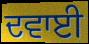
ਦਵਾਈ